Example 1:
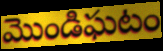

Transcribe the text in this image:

మొండిఘటం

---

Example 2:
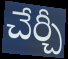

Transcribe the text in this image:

చేర్చీ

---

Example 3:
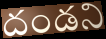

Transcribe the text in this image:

దండని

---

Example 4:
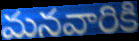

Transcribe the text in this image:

మనవారికి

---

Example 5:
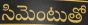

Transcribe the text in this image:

సిమెంటుతో